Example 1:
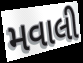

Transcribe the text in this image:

મવાલી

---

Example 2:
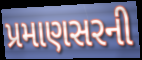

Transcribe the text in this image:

પ્રમાણસરની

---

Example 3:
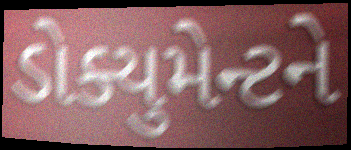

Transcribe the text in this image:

ડોક્યુમેન્ટને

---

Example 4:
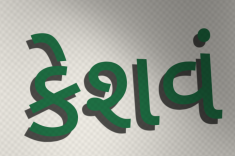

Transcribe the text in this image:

કેશવં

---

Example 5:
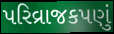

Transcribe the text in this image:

પરિવ્રાજકપણું